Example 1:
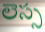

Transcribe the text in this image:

లెస్స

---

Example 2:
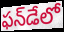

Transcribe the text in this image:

ఫన్‌డేలో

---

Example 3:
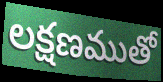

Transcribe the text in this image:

లక్షణముతో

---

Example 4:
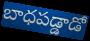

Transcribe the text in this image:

బాధపడ్డాడో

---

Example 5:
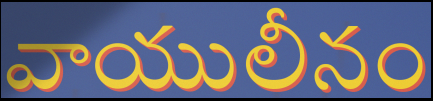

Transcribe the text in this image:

వాయులీనం